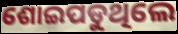
ଶୋଇପଡୁଥିଲେ